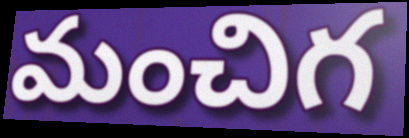
మంచిగ